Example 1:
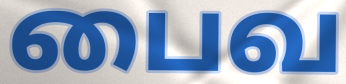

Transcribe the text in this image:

பைவ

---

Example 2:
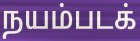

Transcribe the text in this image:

நயம்படக்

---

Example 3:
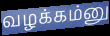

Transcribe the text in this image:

வழக்கம்னு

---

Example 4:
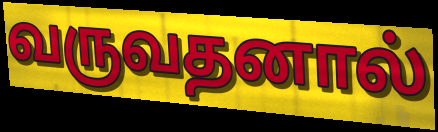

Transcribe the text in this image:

வருவதனால்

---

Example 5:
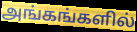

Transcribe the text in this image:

அங்கங்களில்